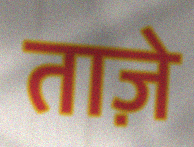
ताज़े